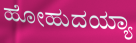
ಹೋಹುದಯ್ಯಾ